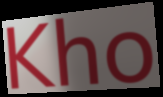
Kho